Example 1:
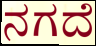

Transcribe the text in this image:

ನಗದೆ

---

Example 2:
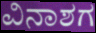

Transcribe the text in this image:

ವಿನಾಶಗ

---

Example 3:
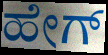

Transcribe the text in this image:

ಹೇಗ್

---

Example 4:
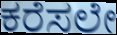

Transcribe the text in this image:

ಕರೆಸಲೇ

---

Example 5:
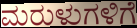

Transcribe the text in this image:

ಮರುಳುಗಳಿಗೆ